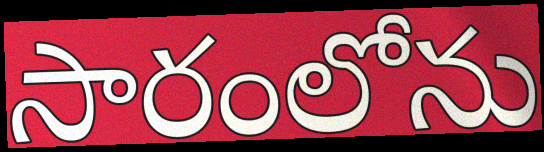
సారంలోను